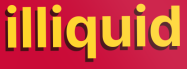
illiquid